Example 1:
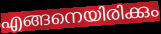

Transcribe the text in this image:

എങ്ങനെയിരിക്കും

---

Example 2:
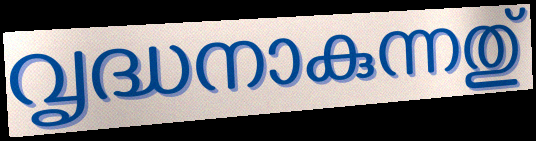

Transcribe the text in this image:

വൃദ്ധനാകുന്നതു്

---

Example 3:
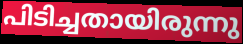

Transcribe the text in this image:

പിടിച്ചതായിരുന്നു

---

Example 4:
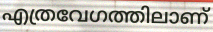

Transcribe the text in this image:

എത്രവേഗത്തിലാണ്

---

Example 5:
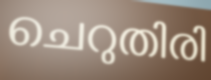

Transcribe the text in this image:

ചെറുതിരി